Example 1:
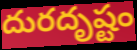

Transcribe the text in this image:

దురదృష్టం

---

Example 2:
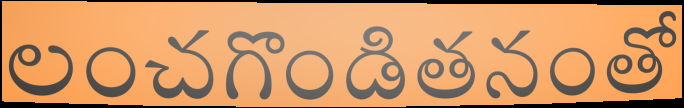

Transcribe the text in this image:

లంచగొండితనంతో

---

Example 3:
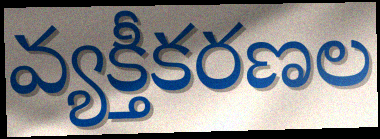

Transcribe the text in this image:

వ్యక్తీకరణల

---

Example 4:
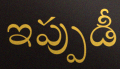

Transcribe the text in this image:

ఇప్పుడీ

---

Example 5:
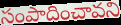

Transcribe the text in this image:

సంపాదించావని